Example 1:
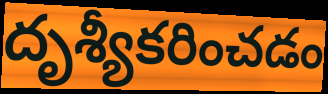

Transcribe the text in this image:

దృశ్యీకరించడం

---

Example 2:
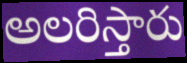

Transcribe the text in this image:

అలరిస్తారు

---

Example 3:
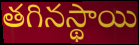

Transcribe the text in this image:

తగినస్థాయి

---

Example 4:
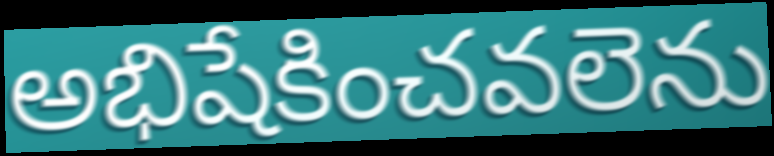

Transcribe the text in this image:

అభిషేకించవలెను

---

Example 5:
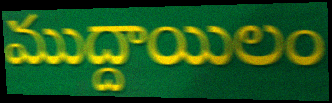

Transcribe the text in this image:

ముద్దాయిలం